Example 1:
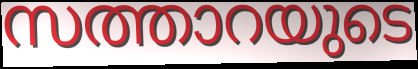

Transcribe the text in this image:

സത്താറയുടെ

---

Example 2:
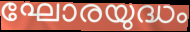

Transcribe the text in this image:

ഘോരയുദ്ധം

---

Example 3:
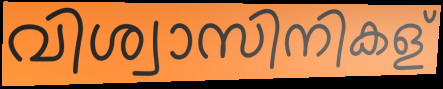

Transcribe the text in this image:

വിശ്വാസിനികള്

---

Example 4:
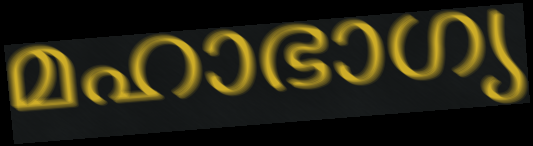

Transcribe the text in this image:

മഹാഭാഗ്യ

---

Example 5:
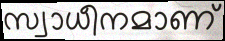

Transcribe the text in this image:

സ്വാധീനമാണ്